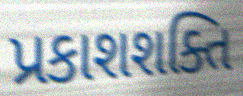
પ્રકાશશક્તિ